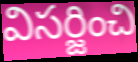
విసర్జించి